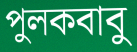
পুলকবাবু